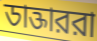
ডাক্তাররা